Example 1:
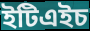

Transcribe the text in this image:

ইটিএইচ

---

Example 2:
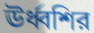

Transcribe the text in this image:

ঊর্ধ্বশির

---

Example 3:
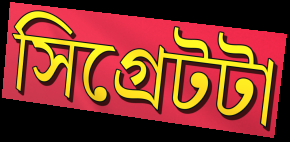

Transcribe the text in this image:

সিগ্রেটটা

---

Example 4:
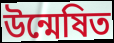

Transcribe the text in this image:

উন্মেষিত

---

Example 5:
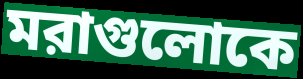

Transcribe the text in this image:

মরাগুলোকে